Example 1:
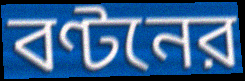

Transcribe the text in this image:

বণ্টনের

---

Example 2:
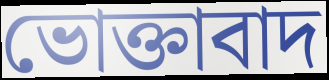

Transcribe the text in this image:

ভোক্তাবাদ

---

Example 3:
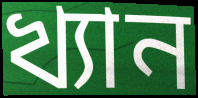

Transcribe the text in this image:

খ্যান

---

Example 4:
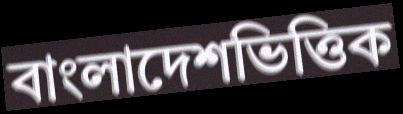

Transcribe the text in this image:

বাংলাদেশভিত্তিক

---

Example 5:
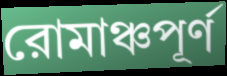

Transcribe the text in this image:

রোমাঞ্চপূর্ণ